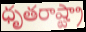
ధృతరాష్ట్రా